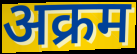
अक्रम